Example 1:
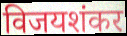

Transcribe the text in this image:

विजयशंकर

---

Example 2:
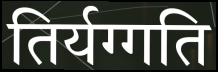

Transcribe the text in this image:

तिर्यग्गति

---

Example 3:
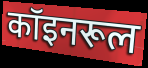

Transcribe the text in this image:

कॉइनरूल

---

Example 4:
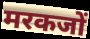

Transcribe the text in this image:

मरकजों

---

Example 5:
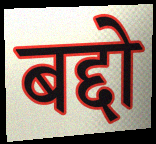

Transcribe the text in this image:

बद्दो